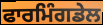
ਫਾਰਮਿੰਗਡੇਲ